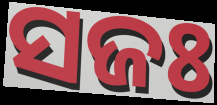
ସଜଃ